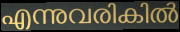
എന്നുവരികിൽ